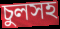
চুলসহ